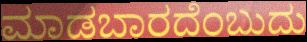
ಮಾಡಬಾರದೆಂಬುದು